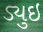
ડ્યુઇ